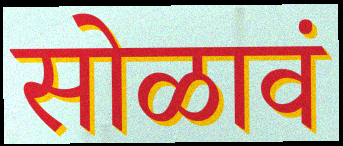
सोळावं